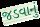
જડવાનું